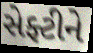
સેફ્ટીને